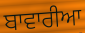
ਬਾਵਾਰੀਆ